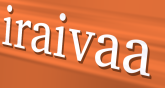
iraivaa